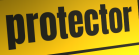
protector